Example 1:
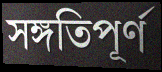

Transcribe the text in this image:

সঙ্গতিপূর্ণ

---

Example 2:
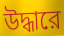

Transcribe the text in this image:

উদ্ধারে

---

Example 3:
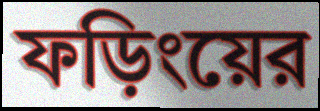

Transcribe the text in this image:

ফড়িংয়ের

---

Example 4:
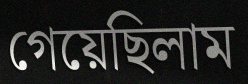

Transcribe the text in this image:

গেয়েছিলাম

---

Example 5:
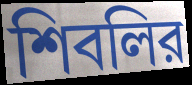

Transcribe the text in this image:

শিবলির